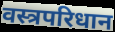
वस्त्रपरिधान